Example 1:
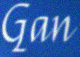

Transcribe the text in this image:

Gan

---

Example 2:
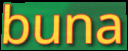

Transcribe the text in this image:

buna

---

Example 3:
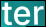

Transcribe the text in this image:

ter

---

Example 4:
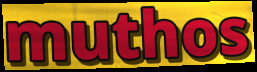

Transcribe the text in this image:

muthos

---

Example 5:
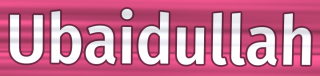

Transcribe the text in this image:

Ubaidullah